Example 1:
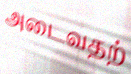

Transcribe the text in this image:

அடைவதற்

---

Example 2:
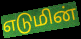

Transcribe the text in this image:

எடுமின்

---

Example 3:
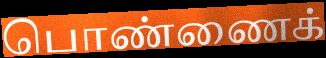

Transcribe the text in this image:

பொண்ணைக்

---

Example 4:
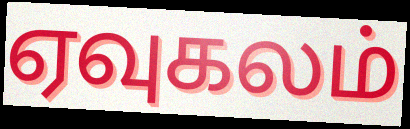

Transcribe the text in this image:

ஏவுகலம்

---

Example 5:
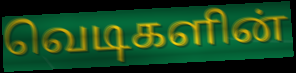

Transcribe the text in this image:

வெடிகளின்